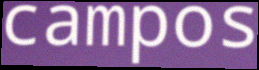
campos